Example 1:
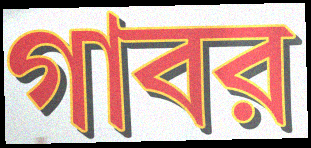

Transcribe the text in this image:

গাবর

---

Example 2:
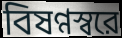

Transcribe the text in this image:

বিষণ্ণস্বরে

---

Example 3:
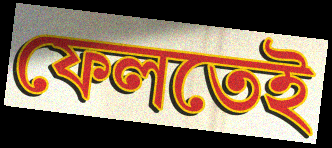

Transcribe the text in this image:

ফেলতেই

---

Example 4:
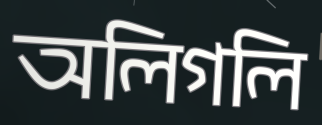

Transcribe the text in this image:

অলিগলি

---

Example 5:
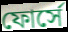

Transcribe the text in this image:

ফোর্সে